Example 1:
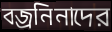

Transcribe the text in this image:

বজ্রনিনাদের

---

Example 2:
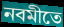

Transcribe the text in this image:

নবমীতে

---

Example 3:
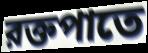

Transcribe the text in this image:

রক্তপাতে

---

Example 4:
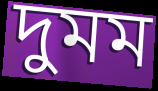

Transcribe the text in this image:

দুমম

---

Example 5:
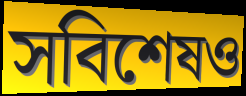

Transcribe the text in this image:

সবিশেষও